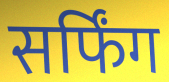
सर्फिंग